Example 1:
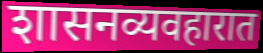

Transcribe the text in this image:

शासनव्यवहारात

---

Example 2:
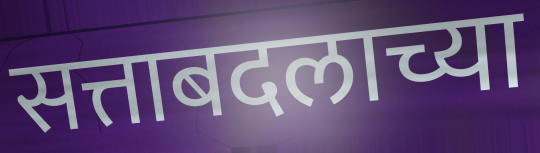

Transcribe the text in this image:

सत्ताबदलाच्या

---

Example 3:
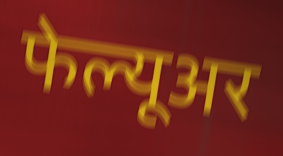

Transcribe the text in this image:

फेल्यूअर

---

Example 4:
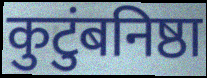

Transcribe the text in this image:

कुटुंबनिष्ठा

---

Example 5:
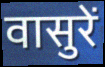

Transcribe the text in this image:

वासुरें